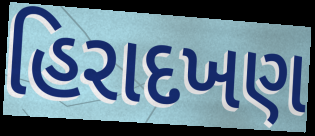
હિરાદખણ